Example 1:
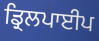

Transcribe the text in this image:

ਡ੍ਰਿਲਪਾਈਪ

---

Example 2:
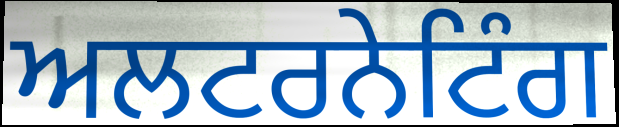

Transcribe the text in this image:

ਅਲਟਰਨੇਟਿੰਗ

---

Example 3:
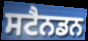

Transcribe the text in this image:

ਸਟੈਨਡਨ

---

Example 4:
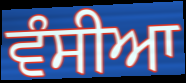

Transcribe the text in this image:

ਵੰਸੀਆ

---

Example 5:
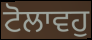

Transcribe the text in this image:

ਟੋਲਾਵਹੁ